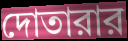
দোতারার